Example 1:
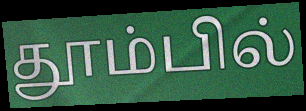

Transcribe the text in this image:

தூம்பில்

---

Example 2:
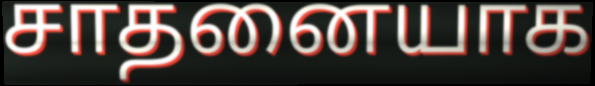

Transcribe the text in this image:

சாதனையாக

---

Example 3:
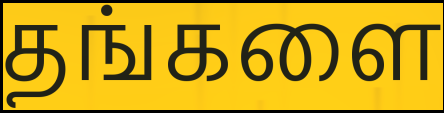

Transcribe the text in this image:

தங்களை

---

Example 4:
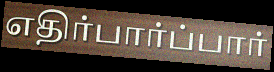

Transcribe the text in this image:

எதிர்பார்ப்பார்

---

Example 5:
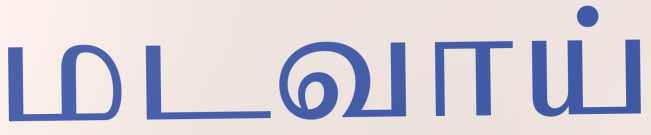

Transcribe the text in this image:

மடவாய்